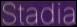
Stadia